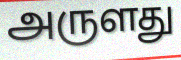
அருளது